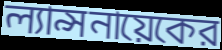
ল্যান্সনায়েকের